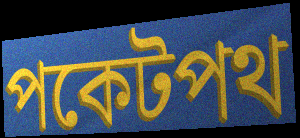
পকেটপথ